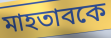
মাহতাবকে